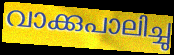
വാക്കുപാലിച്ചു